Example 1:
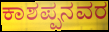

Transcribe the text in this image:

ಕಾಶಪ್ಪನವರ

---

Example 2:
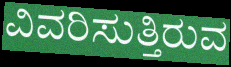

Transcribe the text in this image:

ವಿವರಿಸುತ್ತಿರುವ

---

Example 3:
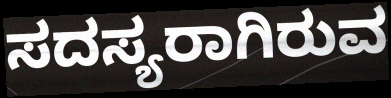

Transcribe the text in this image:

ಸದಸ್ಯರಾಗಿರುವ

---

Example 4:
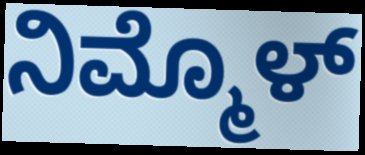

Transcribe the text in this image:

ನಿಮ್ಮೊಳ್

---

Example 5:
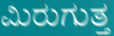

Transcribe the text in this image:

ಮಿರುಗುತ್ತ